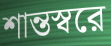
শান্তস্বরে